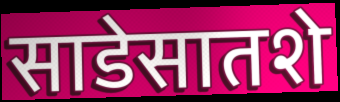
साडेसातशे